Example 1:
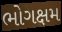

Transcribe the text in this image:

ભોગક્ષમ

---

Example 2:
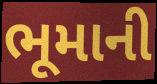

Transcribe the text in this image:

ભૂમાની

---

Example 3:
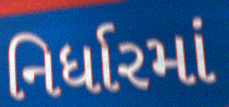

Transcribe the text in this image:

નિર્ધારમાં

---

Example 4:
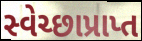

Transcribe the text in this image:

સ્વેચ્છાપ્રાપ્ત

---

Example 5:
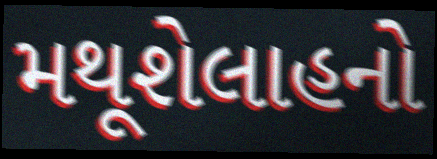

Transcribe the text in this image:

મથૂશેલાહનો